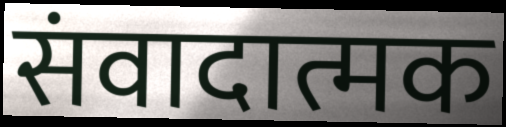
संवादात्मक